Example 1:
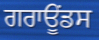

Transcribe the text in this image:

ਗਰਾਊਂਡਸ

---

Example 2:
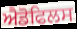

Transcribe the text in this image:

ਐਡੋਫਿਲਸ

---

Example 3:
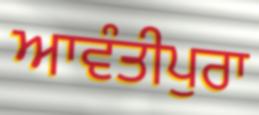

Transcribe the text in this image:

ਆਵੰਤੀਪੁਰਾ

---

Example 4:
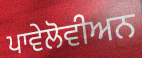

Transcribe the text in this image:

ਪਾਵੇਲੋਵੀਅਨ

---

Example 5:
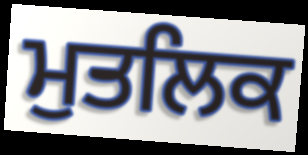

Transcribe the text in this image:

ਮੁਤਲਿਕ